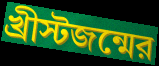
খ্রীস্টজন্মের